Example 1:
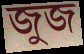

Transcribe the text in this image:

জুজ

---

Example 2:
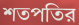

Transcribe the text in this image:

শতপতির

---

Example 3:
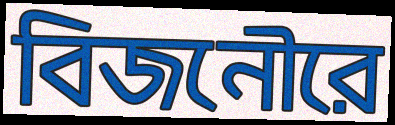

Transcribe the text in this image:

বিজনৌরে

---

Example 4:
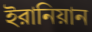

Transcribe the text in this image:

ইরানিয়ান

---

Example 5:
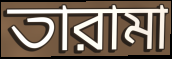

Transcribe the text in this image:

তারামা